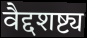
वैद्दशष्ट्य